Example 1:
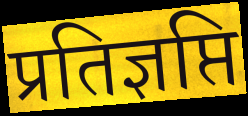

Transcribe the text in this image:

प्रतिज्ञप्ति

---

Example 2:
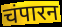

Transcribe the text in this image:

चंपारन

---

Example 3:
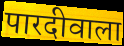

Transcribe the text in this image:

पारदीवाला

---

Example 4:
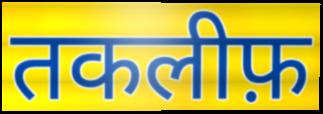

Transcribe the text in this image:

तकलीफ़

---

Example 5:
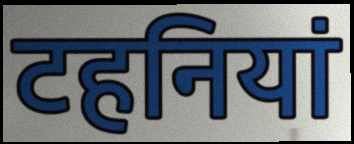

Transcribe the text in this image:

टहनियां